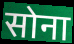
सोना